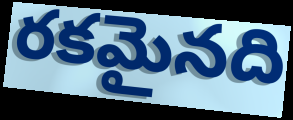
రకమైనది